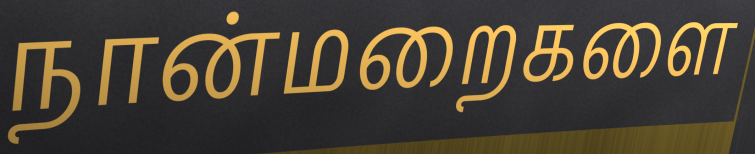
நான்மறைகளை